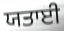
ਯਤਾਈ